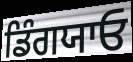
ਡਿੰਗਯਾਓ